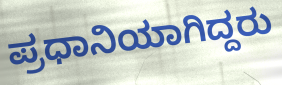
ಪ್ರಧಾನಿಯಾಗಿದ್ದರು